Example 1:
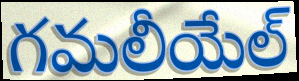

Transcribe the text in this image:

గమలీయేల్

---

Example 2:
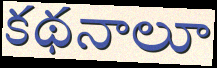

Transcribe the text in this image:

కథనాలూ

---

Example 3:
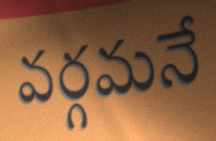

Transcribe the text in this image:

వర్గమనే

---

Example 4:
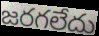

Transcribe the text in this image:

జరగలేదు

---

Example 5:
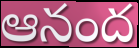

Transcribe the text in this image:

ఆనంద